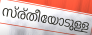
സ്ര്തീയോടുള്ള